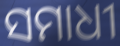
ସମାଧୀ